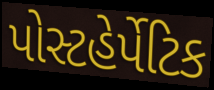
પોસ્ટહેર્પેટિક